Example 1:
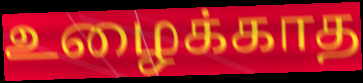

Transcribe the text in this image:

உழைக்காத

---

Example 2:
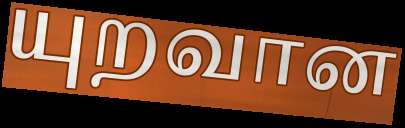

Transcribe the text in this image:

யுறவான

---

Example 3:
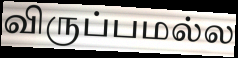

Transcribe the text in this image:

விருப்பமல்ல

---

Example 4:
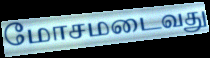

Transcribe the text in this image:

மோசமடைவது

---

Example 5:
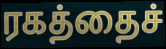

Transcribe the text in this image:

ரகத்தைச்